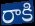
రాకి